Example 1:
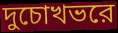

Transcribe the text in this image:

দুচোখভরে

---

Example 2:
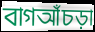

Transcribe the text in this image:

বাগআঁচড়া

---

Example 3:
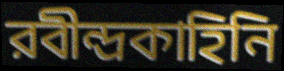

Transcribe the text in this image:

রবীন্দ্রকাহিনি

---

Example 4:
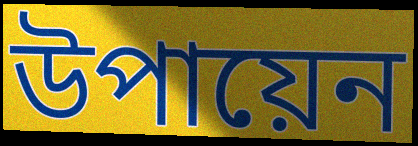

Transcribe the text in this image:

উপায়েন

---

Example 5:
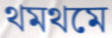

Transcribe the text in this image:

থমথমে